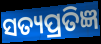
ସତ୍ୟପ୍ରତିଜ୍ଞ